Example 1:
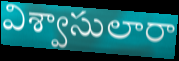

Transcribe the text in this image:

విశ్వాసులారా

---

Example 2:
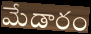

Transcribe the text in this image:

మేడారం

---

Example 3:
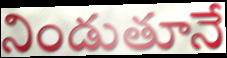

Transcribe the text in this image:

నిండుతూనే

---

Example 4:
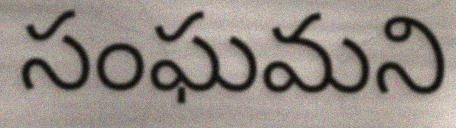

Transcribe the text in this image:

సంఘమని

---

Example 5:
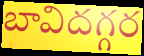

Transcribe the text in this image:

బావిదగ్గర